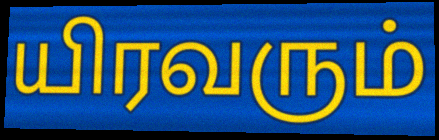
யிரவரும்